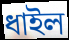
ধাইল